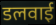
डलवाई